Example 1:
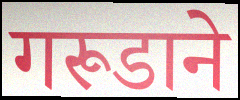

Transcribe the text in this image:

गरूडाने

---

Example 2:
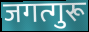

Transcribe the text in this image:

जगत्गुरू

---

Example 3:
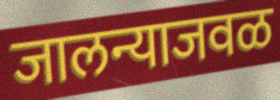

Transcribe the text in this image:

जालन्याजवळ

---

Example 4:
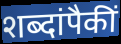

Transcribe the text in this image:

शब्दांपैकीं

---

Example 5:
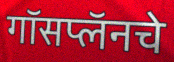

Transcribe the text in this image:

गॉसप्लॅनचे